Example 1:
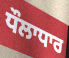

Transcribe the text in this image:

ਧੌਲਾਧਾਰ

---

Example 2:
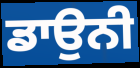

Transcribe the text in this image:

ਡਾਉਨੀ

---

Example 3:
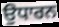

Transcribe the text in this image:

ਉਧਾਰਨ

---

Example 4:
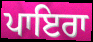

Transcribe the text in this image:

ਪਾਇਰਾ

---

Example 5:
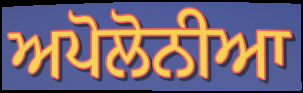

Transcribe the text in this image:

ਅਪੋਲੋਨੀਆ